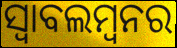
ସ୍ବାବଲମ୍ବନର